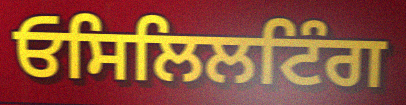
ਓਸਿਲਿਲਟਿੰਗ